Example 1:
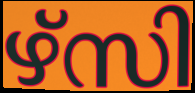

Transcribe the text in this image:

ഴ്സി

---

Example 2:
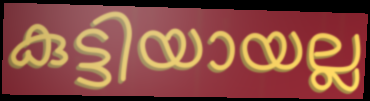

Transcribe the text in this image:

കുട്ടിയായല്ല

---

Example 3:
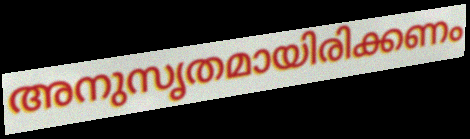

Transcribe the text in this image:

അനുസൃതമായിരിക്കണം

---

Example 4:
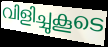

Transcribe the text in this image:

വിളിച്ചുകൂടെ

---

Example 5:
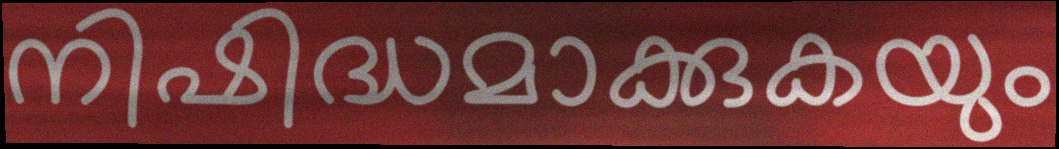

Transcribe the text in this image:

നിഷിദ്ധമാക്കുകയും